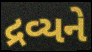
દ્રવ્યને